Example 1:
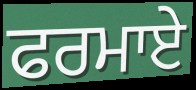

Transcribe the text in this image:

ਫਰਮਾਏ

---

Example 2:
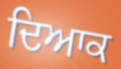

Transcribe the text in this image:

ਦਿਆਕ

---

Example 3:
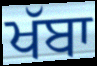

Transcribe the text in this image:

ਖੱਬਾ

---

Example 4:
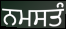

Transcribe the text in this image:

ਨਮਸਤੰ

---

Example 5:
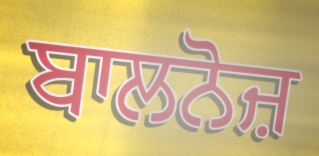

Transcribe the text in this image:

ਬਾਲਨੋਜ਼